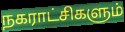
நகராட்சிகளும்